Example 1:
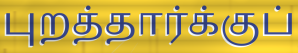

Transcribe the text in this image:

புறத்தார்க்குப்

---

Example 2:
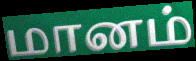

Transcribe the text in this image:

மானம்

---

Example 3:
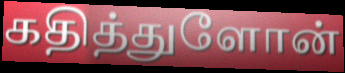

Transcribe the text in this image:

கதித்துளோன்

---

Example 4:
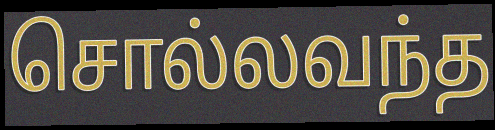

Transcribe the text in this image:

சொல்லவந்த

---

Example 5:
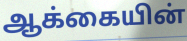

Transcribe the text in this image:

ஆக்கையின்